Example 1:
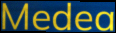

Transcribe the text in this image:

Medea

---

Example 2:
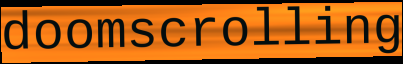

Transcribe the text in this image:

doomscrolling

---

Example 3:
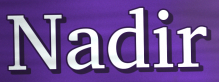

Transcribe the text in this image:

Nadir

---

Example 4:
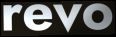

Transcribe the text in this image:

revo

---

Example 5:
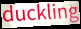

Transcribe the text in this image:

duckling